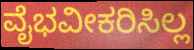
ವೈಭವೀಕರಿಸಿಲ್ಲ